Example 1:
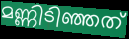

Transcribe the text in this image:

മണ്ണിടിഞ്ഞത്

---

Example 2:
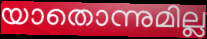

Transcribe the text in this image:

യാതൊന്നുമില്ല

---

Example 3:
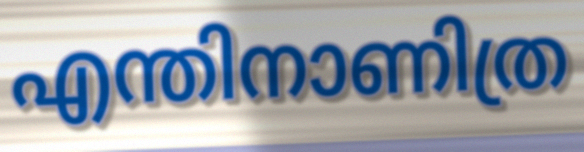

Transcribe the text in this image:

എന്തിനാണിത്ര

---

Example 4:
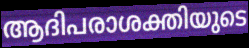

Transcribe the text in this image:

ആദിപരാശക്തിയുടെ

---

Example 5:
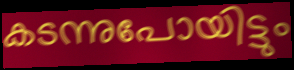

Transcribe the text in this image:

കടന്നുപോയിട്ടും